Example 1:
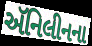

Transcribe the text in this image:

ઍનિલીનના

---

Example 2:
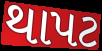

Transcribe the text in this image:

થાપટ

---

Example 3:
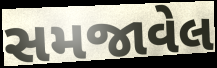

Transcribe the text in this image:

સમજાવેલ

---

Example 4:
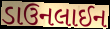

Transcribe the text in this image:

ડાઉનલાઈન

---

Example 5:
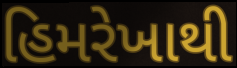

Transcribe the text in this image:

હિમરેખાથી